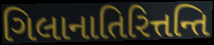
ગિલાનાતિરિત્તન્તિ